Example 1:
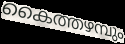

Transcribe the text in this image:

കൈത്തഴമ്പും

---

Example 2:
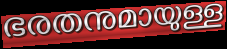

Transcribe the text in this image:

ഭരതനുമായുള്ള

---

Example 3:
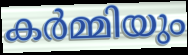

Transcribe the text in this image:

കർമ്മിയും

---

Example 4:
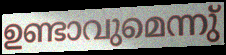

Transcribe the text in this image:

ഉണ്ടാവുമെന്നു്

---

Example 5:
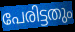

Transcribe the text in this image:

പേരിട്ടതും